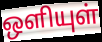
ஒளியுள்